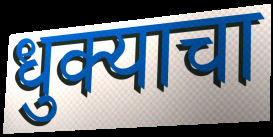
धुक्याचा